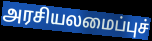
அரசியலமைப்புச்